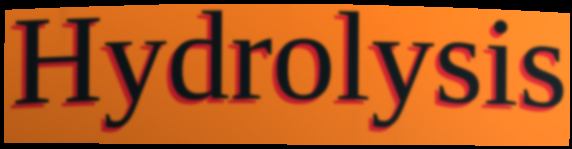
Hydrolysis